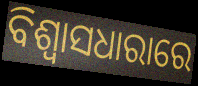
ବିଶ୍ଵାସଧାରାରେ